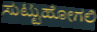
ಸುಟ್ಟುಹೋಗಲಿ